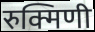
रुक्मिणी